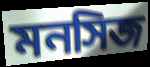
মনসিজ